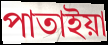
পাতাইয়া